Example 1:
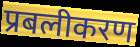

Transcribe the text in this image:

प्रबलीकरण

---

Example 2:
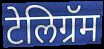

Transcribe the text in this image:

टेलिग्रॅम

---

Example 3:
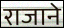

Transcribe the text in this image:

राजाने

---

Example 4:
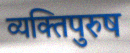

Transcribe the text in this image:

व्यक्तिपुरुष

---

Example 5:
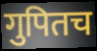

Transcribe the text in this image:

गुपितच